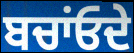
ਬਚਾਂਓਦੇ